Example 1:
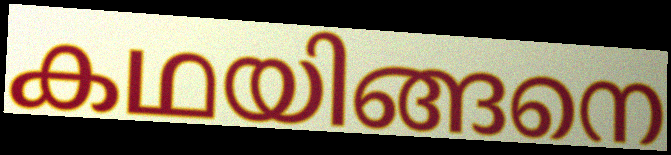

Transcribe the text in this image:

കഥയിങ്ങനെ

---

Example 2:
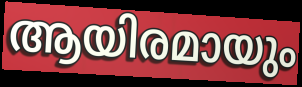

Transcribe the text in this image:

ആയിരമായും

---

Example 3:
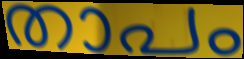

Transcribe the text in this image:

താപം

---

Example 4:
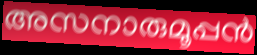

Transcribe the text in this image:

അസനാരുമൂപ്പൻ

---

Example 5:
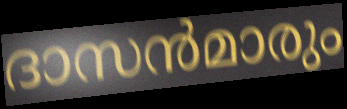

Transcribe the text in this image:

ദാസൻമാരും